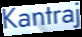
Kantraj